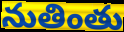
నుతింతు